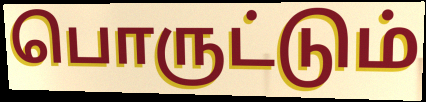
பொருட்டும்